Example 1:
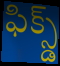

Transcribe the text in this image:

ఫిక్స్డ్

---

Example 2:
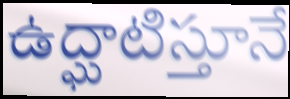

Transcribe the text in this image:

ఉద్ఘాటిస్తూనే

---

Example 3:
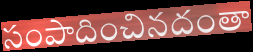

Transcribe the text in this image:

సంపాదించినదంతా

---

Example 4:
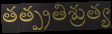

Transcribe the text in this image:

తత్ప్రతిశ్రుత్య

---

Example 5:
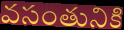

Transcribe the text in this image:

వసంతునికి